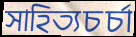
সাহিত্যচর্চা